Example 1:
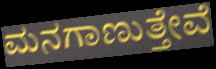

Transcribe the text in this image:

ಮನಗಾಣುತ್ತೇವೆ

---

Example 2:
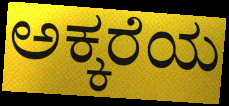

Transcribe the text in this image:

ಅಕ್ಕರೆಯ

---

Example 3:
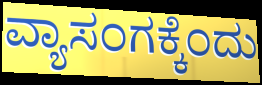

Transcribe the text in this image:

ವ್ಯಾಸಂಗಕ್ಕೆಂದು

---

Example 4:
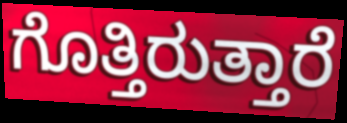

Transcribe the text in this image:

ಗೊತ್ತಿರುತ್ತಾರೆ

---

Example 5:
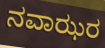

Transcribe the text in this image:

ನವಾಝರ